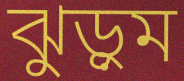
ঝুড়ুম